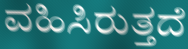
ವಹಿಸಿರುತ್ತದೆ